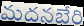
మదనబేరి